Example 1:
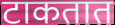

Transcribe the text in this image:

टाकतात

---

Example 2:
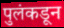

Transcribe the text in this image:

पुलंकडून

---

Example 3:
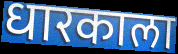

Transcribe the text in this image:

धारकाला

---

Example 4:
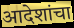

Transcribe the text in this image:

आदेशांचा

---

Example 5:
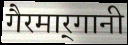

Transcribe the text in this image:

गैरमार्गानी